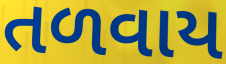
તળવાય